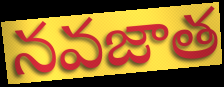
నవజాత